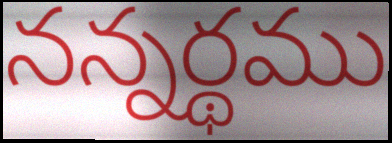
నన్నర్థము